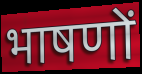
भाषणों